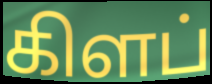
கிளப்